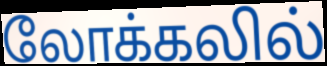
லோக்கலில்